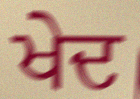
ਖੇਦ